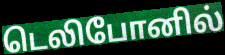
டெலிபோனில்